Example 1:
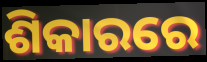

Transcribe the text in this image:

ଶିକାରରେ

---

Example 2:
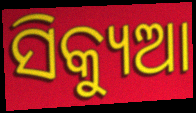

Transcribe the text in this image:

ସିକ୍ୟୁଆ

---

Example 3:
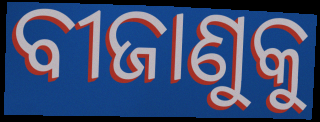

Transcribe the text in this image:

ବୀଜାଣୁକୁ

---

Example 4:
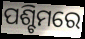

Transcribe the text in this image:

ପଶ୍ଚିମରେ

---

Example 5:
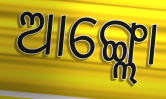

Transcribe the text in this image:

ଆଙ୍ଗ୍ଲୋ